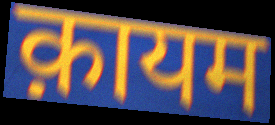
क़ायम